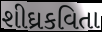
શીઘ્રકવિતા